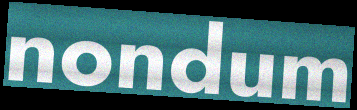
nondum